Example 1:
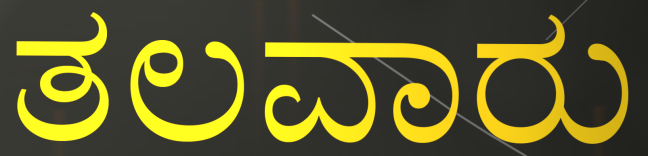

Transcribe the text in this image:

ತಲವಾರು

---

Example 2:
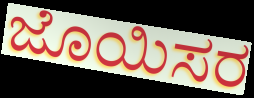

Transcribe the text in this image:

ಜೊಯಿಸರ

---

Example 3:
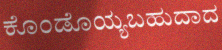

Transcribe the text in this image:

ಕೊಂಡೊಯ್ಯಬಹುದಾದ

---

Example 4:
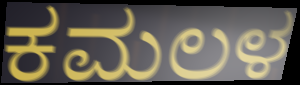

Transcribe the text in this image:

ಕಮಲಳ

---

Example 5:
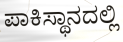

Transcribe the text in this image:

ಪಾಕಿಸ್ಥಾನದಲ್ಲಿ